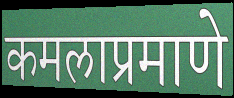
कमलाप्रमाणे